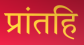
प्रांतहि